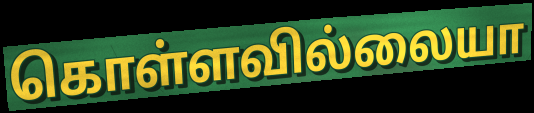
கொள்ளவில்லையா